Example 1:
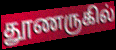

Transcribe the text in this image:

தூணருகில்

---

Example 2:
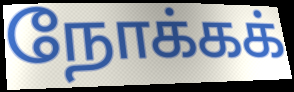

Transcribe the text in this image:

நோக்கக்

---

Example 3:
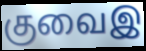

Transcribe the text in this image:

குவைஇ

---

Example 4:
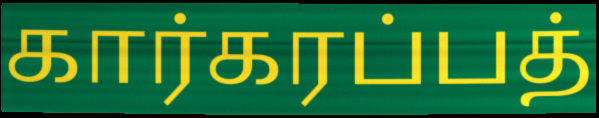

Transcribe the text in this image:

கார்கரப்பத்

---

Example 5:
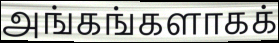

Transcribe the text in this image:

அங்கங்களாகக்